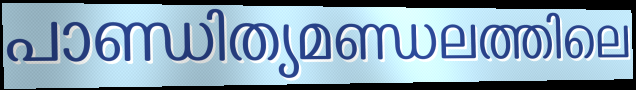
പാണ്ഡിത്യമണ്ഡലത്തിലെ